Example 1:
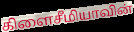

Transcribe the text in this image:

கிளைசீமியாவின்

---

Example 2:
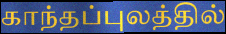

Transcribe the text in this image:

காந்தப்புலத்தில்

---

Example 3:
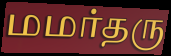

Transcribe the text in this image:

மமர்தரு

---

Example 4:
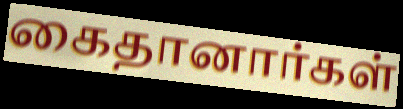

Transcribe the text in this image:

கைதானார்கள்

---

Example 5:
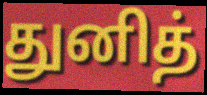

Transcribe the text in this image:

துனித்